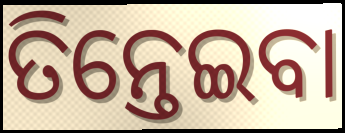
ତିନ୍ତେଇବା